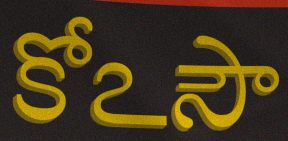
కోఽసౌ